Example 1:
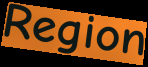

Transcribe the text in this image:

Region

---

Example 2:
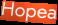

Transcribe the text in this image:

Hopea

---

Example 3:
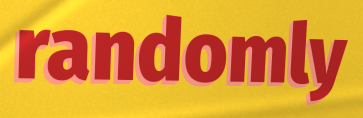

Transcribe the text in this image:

randomly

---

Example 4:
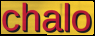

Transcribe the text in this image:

chalo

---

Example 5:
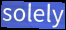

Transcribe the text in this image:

solely